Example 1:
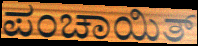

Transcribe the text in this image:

ಪಂಚಾಯಿತ್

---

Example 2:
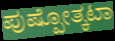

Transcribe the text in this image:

ಪುಷ್ಪೋತ್ಕಟಾ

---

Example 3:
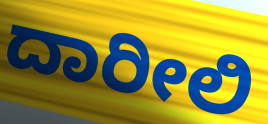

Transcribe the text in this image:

ದಾರೀಲಿ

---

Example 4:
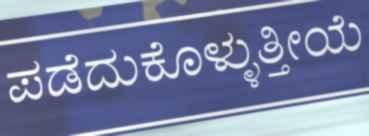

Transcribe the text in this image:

ಪಡೆದುಕೊಳ್ಳುತ್ತೀಯೆ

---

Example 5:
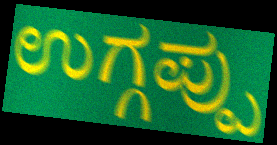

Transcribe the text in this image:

ಉಗ್ಗಪ್ಪು